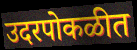
उदरपोकळीत